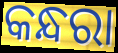
କନ୍ଧରା